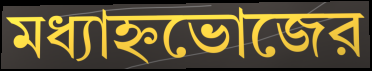
মধ্যাহ্নভোজের